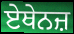
ਏਥੇਨਜ਼